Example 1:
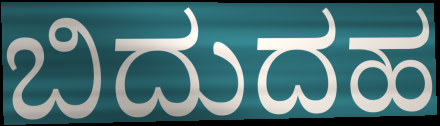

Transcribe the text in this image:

ಬಿದುದಹ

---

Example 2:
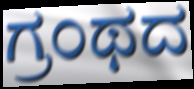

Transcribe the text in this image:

ಗ್ರಂಥದ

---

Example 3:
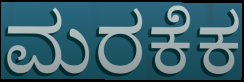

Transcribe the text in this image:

ಮರಕೆಕ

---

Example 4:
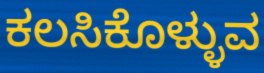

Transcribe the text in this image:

ಕಲಸಿಕೊಳ್ಳುವ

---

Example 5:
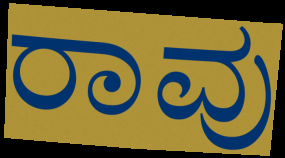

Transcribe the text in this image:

ರಾವು